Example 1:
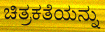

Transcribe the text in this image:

ಚಿತ್ರಕತೆಯನ್ನು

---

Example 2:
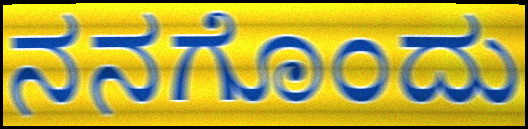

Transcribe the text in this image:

ನನಗೊಂದು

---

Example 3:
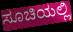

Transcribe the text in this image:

ಸೂಚಿಯಲ್ಲಿ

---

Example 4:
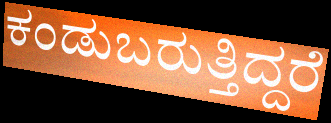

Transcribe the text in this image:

ಕಂಡುಬರುತ್ತಿದ್ದರೆ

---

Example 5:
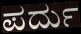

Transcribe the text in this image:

ಪರ್ದು